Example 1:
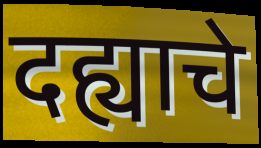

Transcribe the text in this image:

दह्याचे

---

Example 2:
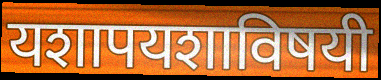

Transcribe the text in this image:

यशापयशाविषयी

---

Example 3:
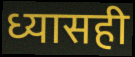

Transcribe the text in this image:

ध्यासही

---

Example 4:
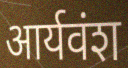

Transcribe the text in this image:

आर्यवंश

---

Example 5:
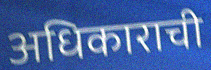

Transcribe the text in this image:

अधिकाराची